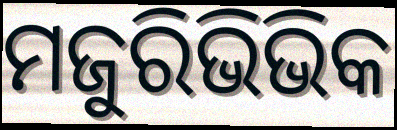
ମଜୁରିଭିଭିକ